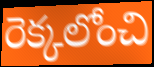
రెక్కలోంచి